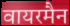
वायरमैन